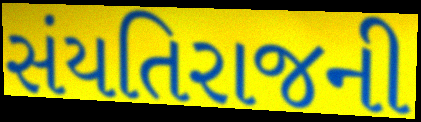
સંયતિરાજની